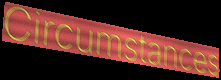
Circumstances